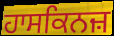
ਹਾਸਕਿਨਜ਼